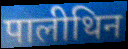
पालीथिन